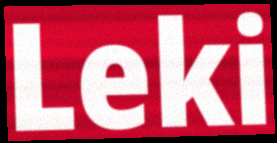
Leki